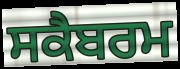
ਸਕੈਬਰਮ